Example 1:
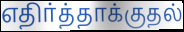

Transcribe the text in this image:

எதிர்த்தாக்குதல்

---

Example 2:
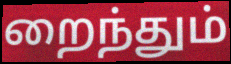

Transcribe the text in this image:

றைந்தும்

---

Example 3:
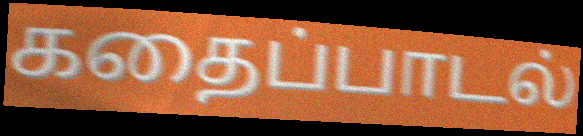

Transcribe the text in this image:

கதைப்பாடல்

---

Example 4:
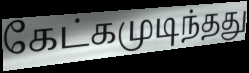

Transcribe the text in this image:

கேட்கமுடிந்தது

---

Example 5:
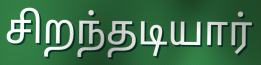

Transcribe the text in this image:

சிறந்தடியார்